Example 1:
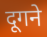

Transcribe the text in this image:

दूगने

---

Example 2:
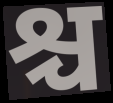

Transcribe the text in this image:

श्च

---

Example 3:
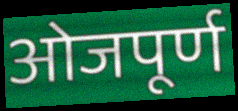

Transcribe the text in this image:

ओजपूर्ण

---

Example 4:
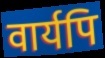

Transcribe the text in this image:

वार्यपि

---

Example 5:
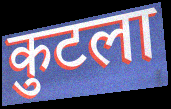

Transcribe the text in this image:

कुटला